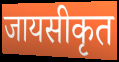
जायसीकृत